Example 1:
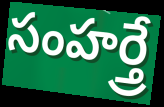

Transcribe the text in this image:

సంహర్త్రే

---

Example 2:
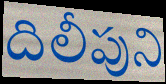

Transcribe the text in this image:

దిలీపుని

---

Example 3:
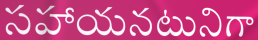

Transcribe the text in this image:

సహాయనటునిగా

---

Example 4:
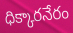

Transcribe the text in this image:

ధిక్కారనేరం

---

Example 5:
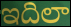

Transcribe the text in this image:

ఇదిలా